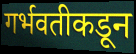
गर्भवतीकडून